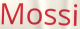
Mossi